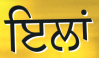
ਇਲਾਂ